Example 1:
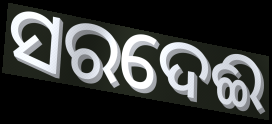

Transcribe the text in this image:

ସରଦେଈ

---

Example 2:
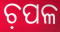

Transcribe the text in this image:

ଚ଼ପଳ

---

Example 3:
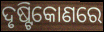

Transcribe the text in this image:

ଦୃଷ୍ଟିକୋଣରେ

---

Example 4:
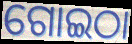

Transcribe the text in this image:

ଗୋଇଠା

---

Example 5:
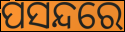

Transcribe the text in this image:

ପସନ୍ଦରେ